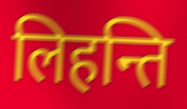
लिहन्ति